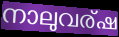
നാലുവര്ഷ